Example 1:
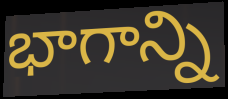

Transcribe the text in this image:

భాగాన్ని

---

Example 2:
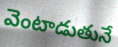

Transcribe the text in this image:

వెంటాడుతునే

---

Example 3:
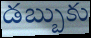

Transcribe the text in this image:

డబ్బుకు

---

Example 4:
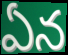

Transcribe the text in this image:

ఏన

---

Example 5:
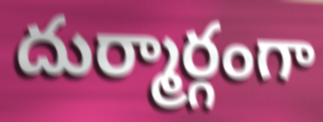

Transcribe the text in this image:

దుర్మార్గంగా